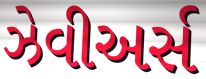
ઝેવીઅર્સ